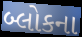
બ્લોકના